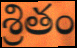
శ్రితం